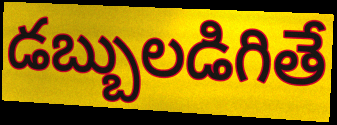
డబ్బులడిగితే